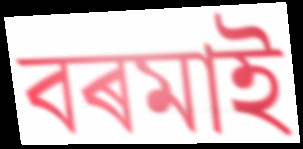
বৰমাই